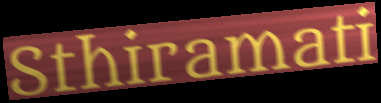
Sthiramati